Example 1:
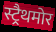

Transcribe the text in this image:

स्ट्रैथमोर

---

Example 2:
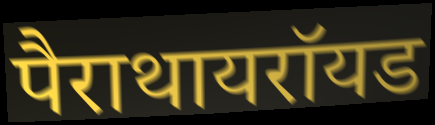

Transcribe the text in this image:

पैराथायरॉयड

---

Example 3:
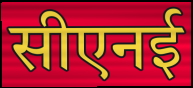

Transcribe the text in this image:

सीएनई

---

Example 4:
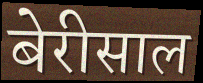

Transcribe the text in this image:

बेरीसाल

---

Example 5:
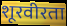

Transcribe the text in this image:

शूरवीरता